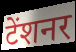
टेंशनर